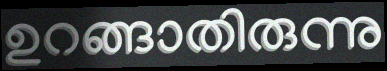
ഉറങ്ങാതിരുന്നു